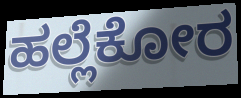
ಹಲ್ಲೆಕೋರ